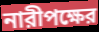
নারীপক্ষের